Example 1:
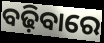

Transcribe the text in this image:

ବଢ଼ିବାରେ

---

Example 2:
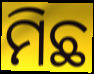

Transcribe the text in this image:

ମିଛ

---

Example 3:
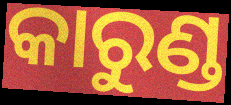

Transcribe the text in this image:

କାରୁଣ୍ଡ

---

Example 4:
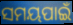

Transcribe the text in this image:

ସମୟପାଇଁ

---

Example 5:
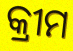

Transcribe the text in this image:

କ୍ରୀମ